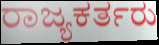
ರಾಜ್ಯಕರ್ತರು